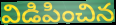
విడిపించిన